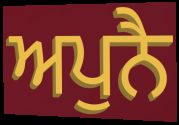
ਅਪੁਨੈ